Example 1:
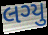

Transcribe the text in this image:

લગ્યુ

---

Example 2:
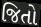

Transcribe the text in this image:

જિતો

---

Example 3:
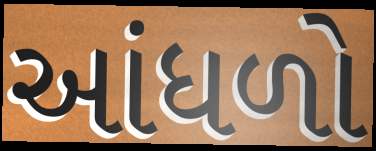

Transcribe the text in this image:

આંધળો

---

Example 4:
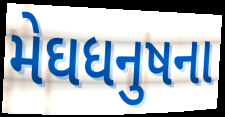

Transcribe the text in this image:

મેઘધનુષના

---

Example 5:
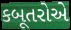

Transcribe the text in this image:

કબૂતરોએ